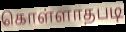
கொள்ளாதபடி